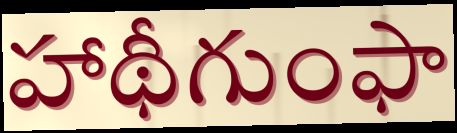
హాథీగుంఫా